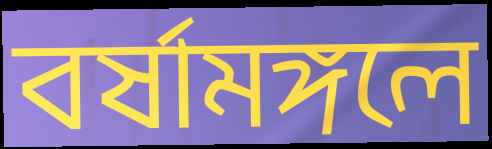
বর্ষামঙ্গলে